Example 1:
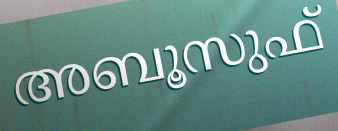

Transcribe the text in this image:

അബൂസുഫ്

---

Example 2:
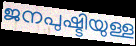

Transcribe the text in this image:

ജനപുഷ്ടിയുള്ള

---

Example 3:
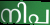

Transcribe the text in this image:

നിപ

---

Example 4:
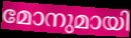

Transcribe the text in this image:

മോനുമായി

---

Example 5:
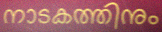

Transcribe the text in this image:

നാടകത്തിനും